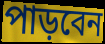
পাড়বেন